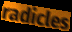
radicles